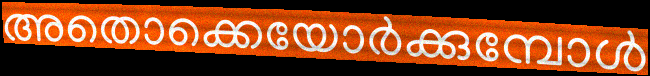
അതൊക്കെയോർക്കുമ്പോൾ